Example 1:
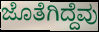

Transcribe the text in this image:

ಜೊತೆಗಿದ್ದೆವು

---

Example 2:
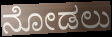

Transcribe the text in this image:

ನೋಡಲು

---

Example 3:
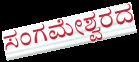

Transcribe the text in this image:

ಸಂಗಮೇಶ್ವರದ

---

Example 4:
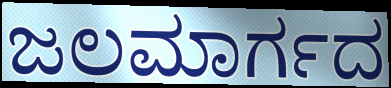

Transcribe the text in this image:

ಜಲಮಾರ್ಗದ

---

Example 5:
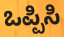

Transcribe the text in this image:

ಒಪ್ಪಿಸಿ